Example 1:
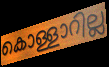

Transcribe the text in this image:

കൊള്ളാറില്ല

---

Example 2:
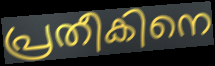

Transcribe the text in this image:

പ്രതീകിനെ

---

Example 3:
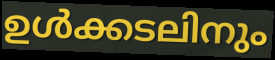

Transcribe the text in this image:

ഉൾക്കടലിനും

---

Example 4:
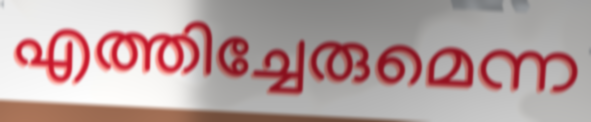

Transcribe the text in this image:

എത്തിച്ചേരുമെന്ന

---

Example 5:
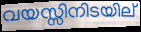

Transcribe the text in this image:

വയസ്സിനിടയില്